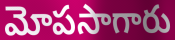
మోపసాగారు